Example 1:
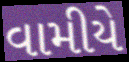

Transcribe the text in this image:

વામીયે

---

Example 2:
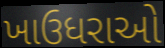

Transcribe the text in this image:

ખાઉધરાઓ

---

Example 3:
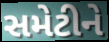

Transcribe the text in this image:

સમેટીને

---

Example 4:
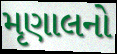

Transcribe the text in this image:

મૃણાલનો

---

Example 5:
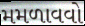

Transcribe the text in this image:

મમળાવવો